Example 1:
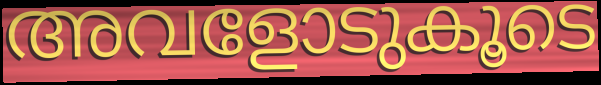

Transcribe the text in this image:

അവളോടുകൂടെ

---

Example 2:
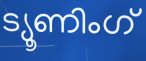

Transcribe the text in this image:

ട്യൂണിംഗ്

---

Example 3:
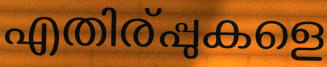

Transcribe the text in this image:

എതിര്പ്പുകളെ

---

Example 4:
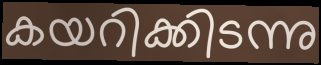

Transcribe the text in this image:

കയറിക്കിടന്നു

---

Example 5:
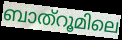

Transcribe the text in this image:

ബാത്റൂമിലെ